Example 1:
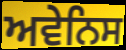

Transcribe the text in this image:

ਅਵੇਨਿਸ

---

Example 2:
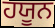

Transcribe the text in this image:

ਹਯੂਨ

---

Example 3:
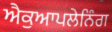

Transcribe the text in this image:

ਐਕੁਆਪਲੇਨਿੰਗ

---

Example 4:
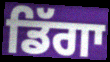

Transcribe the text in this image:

ਡਿੱਗਾ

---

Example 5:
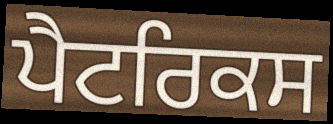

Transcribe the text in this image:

ਪੈਟਰਿਕਸ